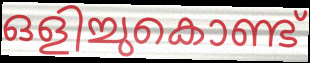
ഒളിച്ചുകൊണ്ട്